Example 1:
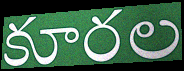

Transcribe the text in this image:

కూరల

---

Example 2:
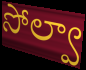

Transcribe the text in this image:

సోల్వా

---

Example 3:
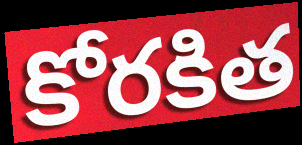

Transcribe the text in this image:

కోరకిత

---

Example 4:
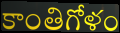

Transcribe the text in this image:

కాంతిగోళం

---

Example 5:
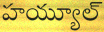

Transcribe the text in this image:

హయ్యూల్